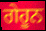
ਗੇਹੂਨ